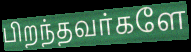
பிறந்தவர்களே